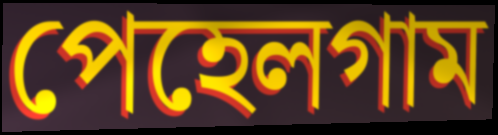
পেহেলগাম